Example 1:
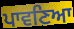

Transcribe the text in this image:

ਪਾਵਣਿਆ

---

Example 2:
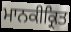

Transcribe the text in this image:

ਮਾਨਕੀਕ੍ਰਿਤ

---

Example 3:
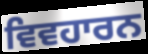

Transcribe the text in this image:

ਵਿਵਹਾਰਨ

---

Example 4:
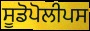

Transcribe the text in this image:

ਸੂਡੋਪੋਲੀਪਸ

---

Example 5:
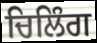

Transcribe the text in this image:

ਚਿਲਿੰਗ